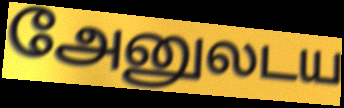
அேனுலடய